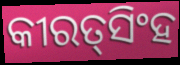
କୀରତ୍‍ସିଂହ